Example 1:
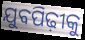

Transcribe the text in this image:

ଯୁବପିଢ଼ୀକୁ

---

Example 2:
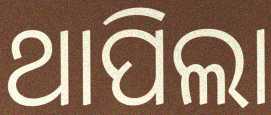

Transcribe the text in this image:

ଥାପିଲା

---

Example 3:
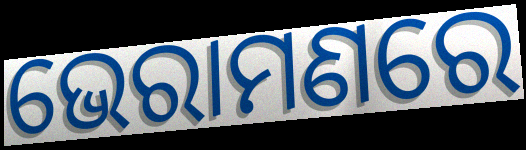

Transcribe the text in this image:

ଭେରାମଣରେ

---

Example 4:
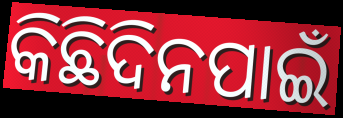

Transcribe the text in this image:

କିଛିଦିନପାଇଁ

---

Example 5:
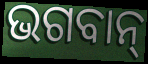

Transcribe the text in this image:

ଭଗବାନ୍